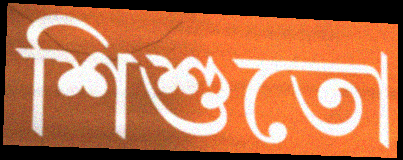
শিশুতো